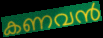
കണവൻ